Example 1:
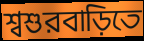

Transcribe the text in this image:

শ্বশুরবাড়িতে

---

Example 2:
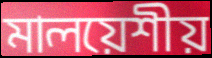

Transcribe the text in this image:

মালয়েশীয়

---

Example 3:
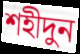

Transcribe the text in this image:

শহীদুন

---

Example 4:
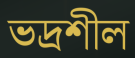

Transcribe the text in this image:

ভদ্রশীল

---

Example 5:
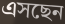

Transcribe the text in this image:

এসছেন